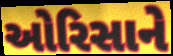
ઓરિસાને